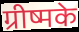
ग्रीष्मके